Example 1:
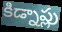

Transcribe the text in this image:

కిడ్నాప్లు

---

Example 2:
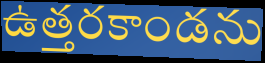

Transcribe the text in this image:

ఉత్తరకాండను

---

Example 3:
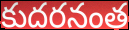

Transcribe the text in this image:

కుదరనంత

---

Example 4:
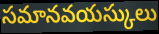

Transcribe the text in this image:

సమానవయస్కులు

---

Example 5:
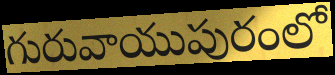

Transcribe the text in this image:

గురువాయుపురంలో